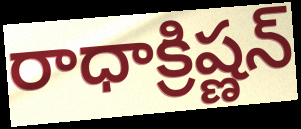
రాధాక్రిష్ణన్